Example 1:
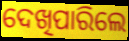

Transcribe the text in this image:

ଦେଖିପାରିଲେ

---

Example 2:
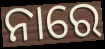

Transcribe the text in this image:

ନାରେ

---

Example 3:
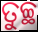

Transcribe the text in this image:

ତୁଚ୍ଛ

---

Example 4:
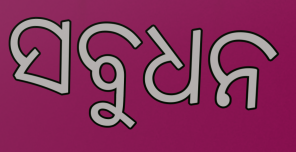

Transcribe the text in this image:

ସବୁଧନ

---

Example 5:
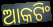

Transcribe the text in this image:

ଆକଟିଂ